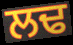
ਲਢ